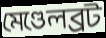
মেণ্ডেলব্ৰট